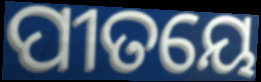
ପୀତୟେ